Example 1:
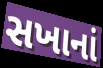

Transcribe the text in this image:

સખાનાં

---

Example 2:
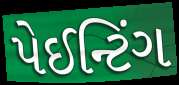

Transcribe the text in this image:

પેઈન્ટિંગ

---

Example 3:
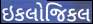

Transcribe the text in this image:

ઇકલોજિકલ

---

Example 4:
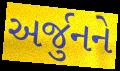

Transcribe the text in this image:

અર્જુનને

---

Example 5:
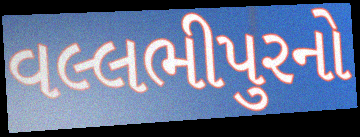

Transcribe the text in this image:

વલ્લભીપુરનો